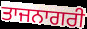
ਤਾਜਨਾਗਰੀ